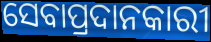
ସେବାପ୍ରଦାନକାରୀ